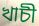
খাচী